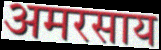
अमरसाय